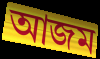
আজম